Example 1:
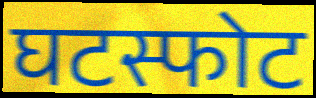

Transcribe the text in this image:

घटस्फोट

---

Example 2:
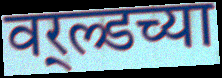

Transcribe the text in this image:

वर्ल्डच्या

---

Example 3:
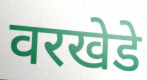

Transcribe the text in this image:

वरखेडे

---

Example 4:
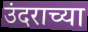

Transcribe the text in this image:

उंदराच्या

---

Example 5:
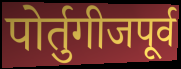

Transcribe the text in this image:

पोर्तुगीजपूर्व